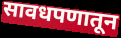
सावधपणातून